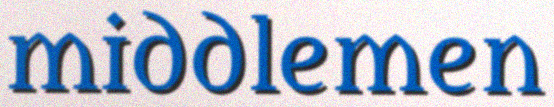
middlemen